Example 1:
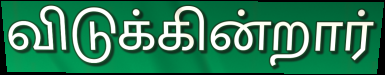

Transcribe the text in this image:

விடுக்கின்றார்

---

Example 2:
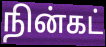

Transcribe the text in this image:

நின்கட்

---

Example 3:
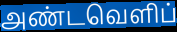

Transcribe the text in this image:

அண்டவெளிப்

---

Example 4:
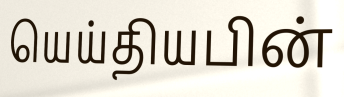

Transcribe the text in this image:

யெய்தியபின்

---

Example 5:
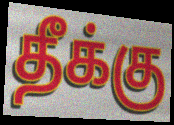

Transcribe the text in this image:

தீக்கு